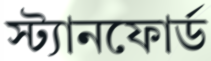
স্ট্যানফোর্ড